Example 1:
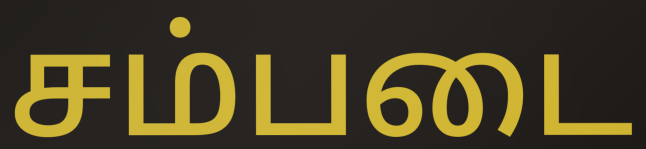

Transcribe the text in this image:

சம்படை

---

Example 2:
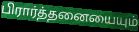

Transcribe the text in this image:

பிரார்த்தனையையும்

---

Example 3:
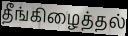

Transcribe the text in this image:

தீங்கிழைத்தல்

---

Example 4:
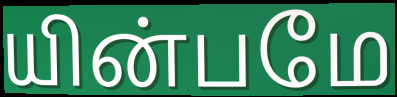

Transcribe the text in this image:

யின்பமே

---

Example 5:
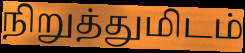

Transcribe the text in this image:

நிறுத்துமிடம்